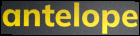
antelope